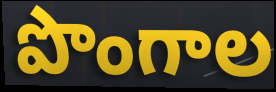
పొంగాల